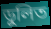
ডুলিত